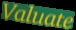
Valuate